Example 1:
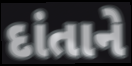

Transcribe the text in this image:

દાંતાને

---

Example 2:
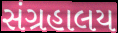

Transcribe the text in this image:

સંગ્રહાલય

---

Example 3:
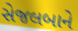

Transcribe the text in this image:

સેજલબાને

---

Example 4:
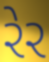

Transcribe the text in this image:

રેર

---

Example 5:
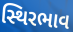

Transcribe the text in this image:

સ્થિરભાવ